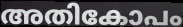
അതികോപം